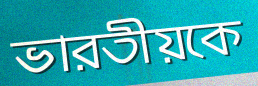
ভারতীয়কে